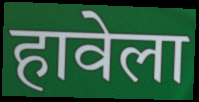
हावेला